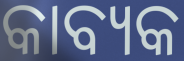
କାବ୍ୟକ